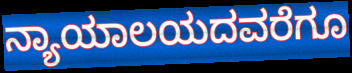
ನ್ಯಾಯಾಲಯದವರೆಗೂ